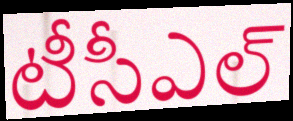
టీసీఎల్